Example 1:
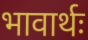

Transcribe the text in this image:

भावार्थः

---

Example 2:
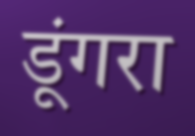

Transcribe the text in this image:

डूंगरा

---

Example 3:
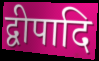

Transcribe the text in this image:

द्वीपादि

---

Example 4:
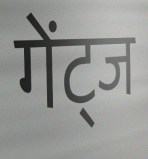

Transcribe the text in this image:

गेंट्ज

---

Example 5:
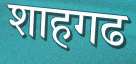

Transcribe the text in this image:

शाहगढ